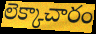
లెక్కాచారం